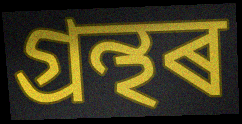
গ্ৰন্থৰ